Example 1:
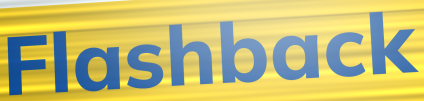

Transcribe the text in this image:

Flashback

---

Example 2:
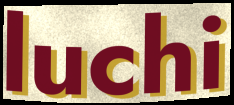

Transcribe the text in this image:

luchi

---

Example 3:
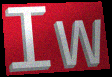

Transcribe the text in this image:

Iw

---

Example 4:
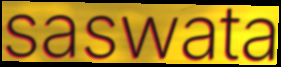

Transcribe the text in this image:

saswata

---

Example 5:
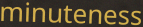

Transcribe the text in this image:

minuteness